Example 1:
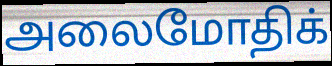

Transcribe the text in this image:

அலைமோதிக்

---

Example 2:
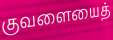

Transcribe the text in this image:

குவளையைத்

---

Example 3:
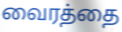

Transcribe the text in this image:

வைரத்தை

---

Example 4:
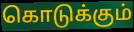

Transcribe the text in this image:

கொடுக்கும்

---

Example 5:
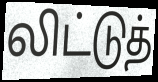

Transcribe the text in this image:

லிட்டுத்